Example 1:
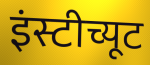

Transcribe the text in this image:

इंस्‍टीच्‍यूट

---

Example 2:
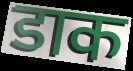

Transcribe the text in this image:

डाक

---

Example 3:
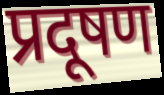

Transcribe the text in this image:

प्रदूषण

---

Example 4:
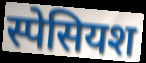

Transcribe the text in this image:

स्पेसियश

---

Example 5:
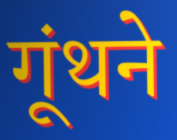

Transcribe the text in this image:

गूंथने